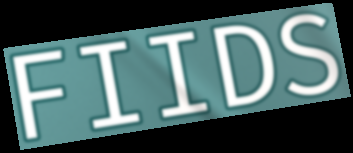
FIIDS